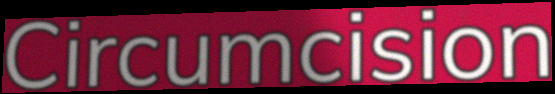
Circumcision